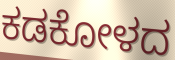
ಕಡಕೋಳದ